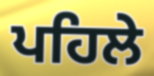
ਪਹਿਲੇ